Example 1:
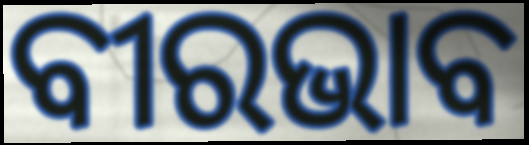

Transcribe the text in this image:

ବୀରଭାବ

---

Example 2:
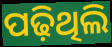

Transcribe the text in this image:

ପଢ଼ିଥିଲି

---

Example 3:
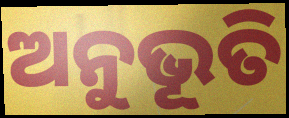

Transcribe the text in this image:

ଅନୁଭୂତି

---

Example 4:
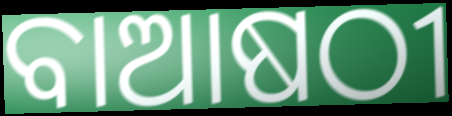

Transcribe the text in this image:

ବାଆଷଠୀ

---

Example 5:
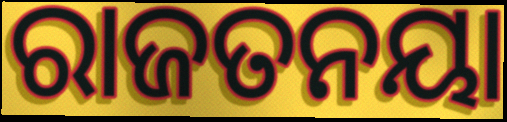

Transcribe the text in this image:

ରାଜତନୟା